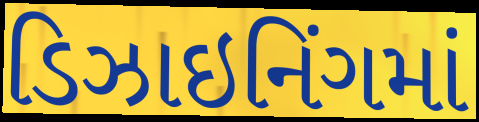
ડિઝાઇનિંગમાં